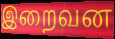
இறைவன